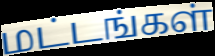
மட்டங்கள்